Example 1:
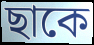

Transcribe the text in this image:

ছাকে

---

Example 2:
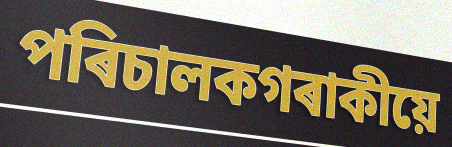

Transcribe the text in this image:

পৰিচালকগৰাকীয়ে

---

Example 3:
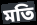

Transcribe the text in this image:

মতি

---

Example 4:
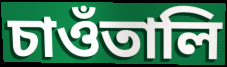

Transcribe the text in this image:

চাওঁতালি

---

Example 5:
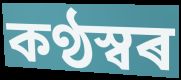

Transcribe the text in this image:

কণ্ঠস্বৰ